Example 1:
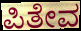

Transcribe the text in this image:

ಪಿತೇವ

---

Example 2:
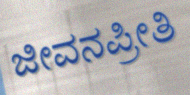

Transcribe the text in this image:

ಜೀವನಪ್ರೀತಿ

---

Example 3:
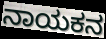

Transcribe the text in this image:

ನಾಯಕನ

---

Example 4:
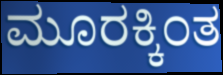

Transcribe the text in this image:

ಮೂರಕ್ಕಿಂತ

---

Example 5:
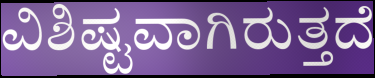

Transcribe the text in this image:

ವಿಶಿಷ್ಟವಾಗಿರುತ್ತದೆ